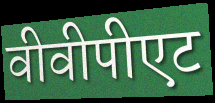
वीवीपीएट